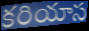
కరియాస